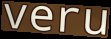
veru